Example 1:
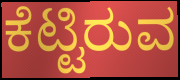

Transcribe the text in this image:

ಕೆಟ್ಟಿರುವ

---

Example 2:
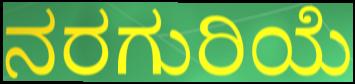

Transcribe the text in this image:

ನರಗುರಿಯೆ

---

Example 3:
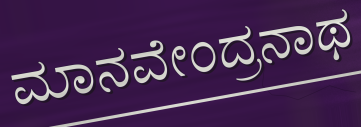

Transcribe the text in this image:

ಮಾನವೇಂದ್ರನಾಥ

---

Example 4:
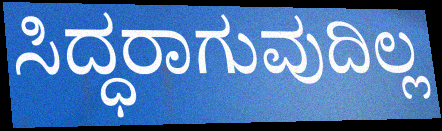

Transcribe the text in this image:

ಸಿದ್ಧರಾಗುವುದಿಲ್ಲ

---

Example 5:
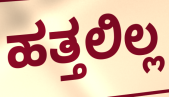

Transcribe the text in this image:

ಹತ್ತಲಿಲ್ಲ